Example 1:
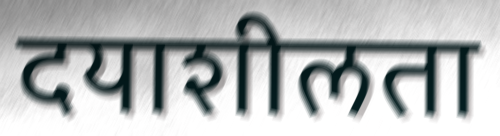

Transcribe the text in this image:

दयाशीलता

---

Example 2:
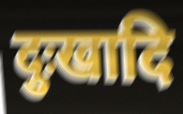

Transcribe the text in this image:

दुःखादि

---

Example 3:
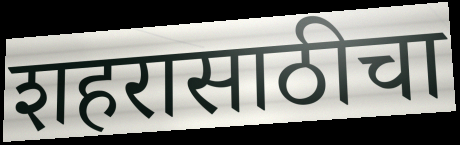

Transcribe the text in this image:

शहरासाठीचा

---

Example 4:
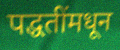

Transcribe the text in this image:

पद्धतींमधून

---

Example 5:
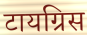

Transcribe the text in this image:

टायग्रिस